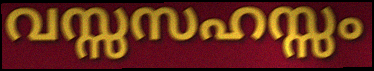
വസ്സസഹസ്സം